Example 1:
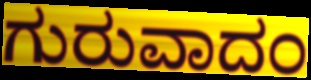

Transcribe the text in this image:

ಗುರುವಾದಂ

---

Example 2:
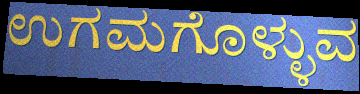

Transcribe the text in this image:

ಉಗಮಗೊಳ್ಳುವ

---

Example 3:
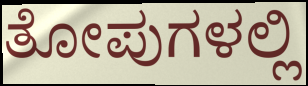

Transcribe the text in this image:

ತೋಪುಗಳಲ್ಲಿ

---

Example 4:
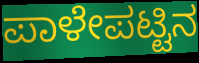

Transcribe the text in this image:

ಪಾಳೇಪಟ್ಟಿನ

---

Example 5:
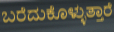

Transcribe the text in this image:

ಬರೆದುಕೊಳ್ಳುತ್ತಾರೆ